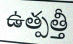
ఉత్పత్తీ